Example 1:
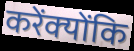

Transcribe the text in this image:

करेंक्योंकि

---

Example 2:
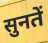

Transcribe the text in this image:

सुनतें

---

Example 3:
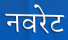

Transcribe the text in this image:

नवरेट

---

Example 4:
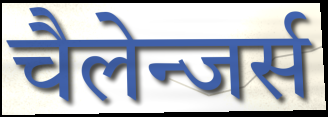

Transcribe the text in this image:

चैलेन्जर्स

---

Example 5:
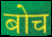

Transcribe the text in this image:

बोच